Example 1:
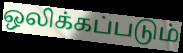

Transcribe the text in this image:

ஒலிக்கப்படும்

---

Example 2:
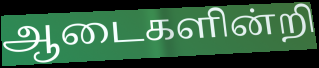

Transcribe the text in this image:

ஆடைகளின்றி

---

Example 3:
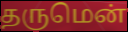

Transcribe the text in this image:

தருமென்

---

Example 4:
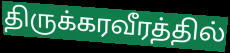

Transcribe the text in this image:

திருக்கரவீரத்தில்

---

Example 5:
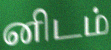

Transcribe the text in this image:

னிடம்